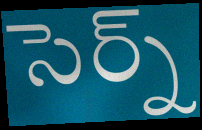
సెర్న్